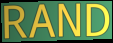
RAND